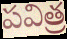
పవిత్ర